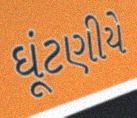
ઘૂંટણીયે